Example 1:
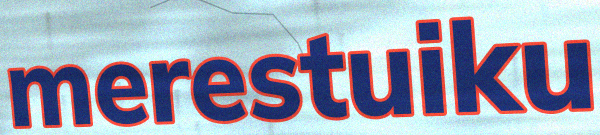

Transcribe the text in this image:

merestuiku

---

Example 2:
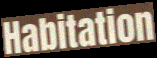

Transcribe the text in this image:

Habitation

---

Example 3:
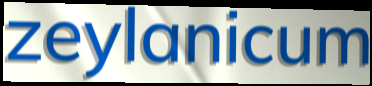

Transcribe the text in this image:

zeylanicum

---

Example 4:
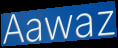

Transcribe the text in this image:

Aawaz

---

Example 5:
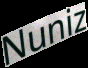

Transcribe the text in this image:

Nuniz